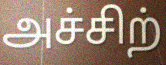
அச்சிற்